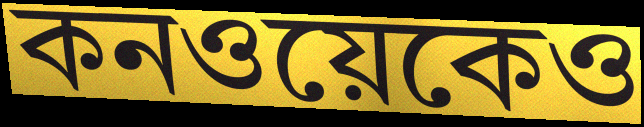
কনওয়েকেও